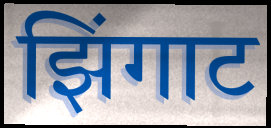
झिंगाट